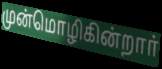
முன்மொழிகின்றார்